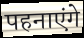
पहनाएंगे